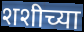
शशीच्या